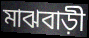
মাঝবাড়ী